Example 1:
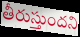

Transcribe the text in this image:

తీరుస్తుందని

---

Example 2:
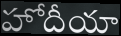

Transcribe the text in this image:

హోదీయా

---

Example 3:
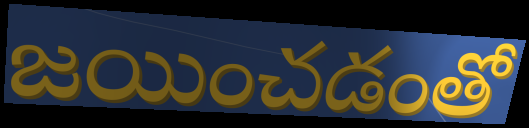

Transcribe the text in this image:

జయించడంతో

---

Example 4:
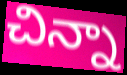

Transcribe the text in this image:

చిన్నా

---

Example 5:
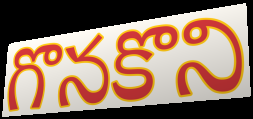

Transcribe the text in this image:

గొనకొని